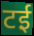
टई